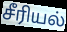
சீரியல்